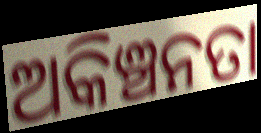
ଅକିଞ୍ଚନତା